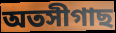
অতসীগাছ